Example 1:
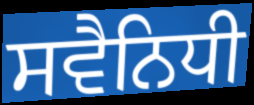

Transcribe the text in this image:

ਸਵੈਨਿਧੀ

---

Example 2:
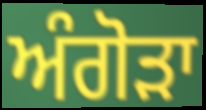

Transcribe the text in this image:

ਅੰਗੋੜਾ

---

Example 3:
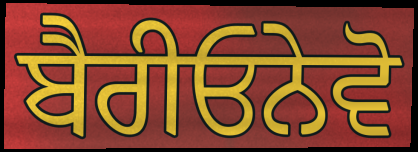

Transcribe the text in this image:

ਬੈਰੀਓਨੇਵੋ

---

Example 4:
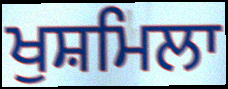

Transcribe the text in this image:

ਖੁਸ਼ਮਿਲਾ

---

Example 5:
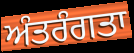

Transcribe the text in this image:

ਅੰਤਰੰਗਤਾ